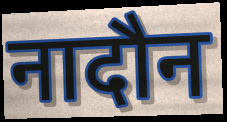
नादौन